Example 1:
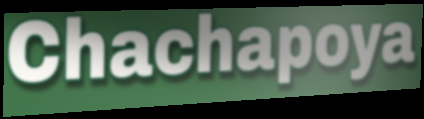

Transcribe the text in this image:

Chachapoya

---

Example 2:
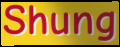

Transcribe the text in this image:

Shung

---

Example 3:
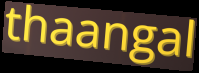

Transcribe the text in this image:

thaangal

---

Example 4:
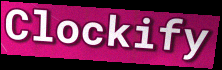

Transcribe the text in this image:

Clockify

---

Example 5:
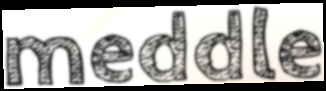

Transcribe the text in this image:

meddle